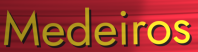
Medeiros